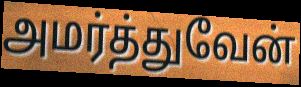
அமர்த்துவேன்